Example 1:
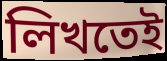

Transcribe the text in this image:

লিখতেই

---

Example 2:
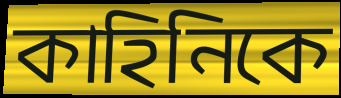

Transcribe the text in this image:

কাহিনিকে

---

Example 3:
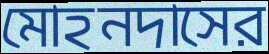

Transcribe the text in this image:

মোহনদাসের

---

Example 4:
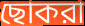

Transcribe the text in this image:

ছোকরা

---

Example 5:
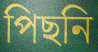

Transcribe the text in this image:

পিছনি